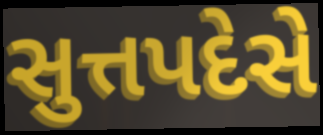
સુત્તપદેસે